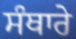
ਸੰਥਾਰੇ